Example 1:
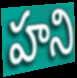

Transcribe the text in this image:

హని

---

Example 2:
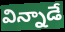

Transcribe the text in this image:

విన్నాడే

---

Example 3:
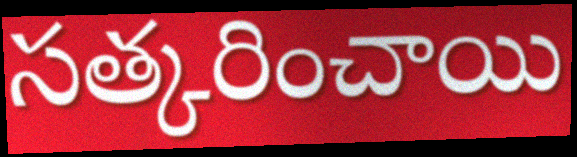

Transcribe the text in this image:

సత్కరించాయి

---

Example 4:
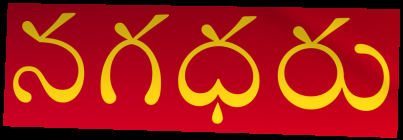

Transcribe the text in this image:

నగధరు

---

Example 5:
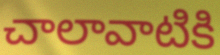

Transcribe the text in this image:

చాలావాటికి